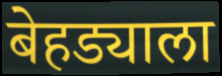
बेहड्याला